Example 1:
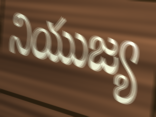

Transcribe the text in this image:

నియుజ్య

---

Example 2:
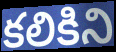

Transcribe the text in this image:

కలికిని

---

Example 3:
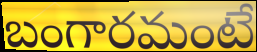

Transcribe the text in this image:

బంగారమంటే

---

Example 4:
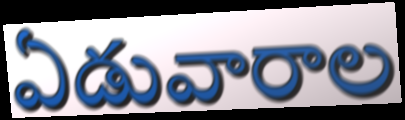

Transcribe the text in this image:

ఏడువారాల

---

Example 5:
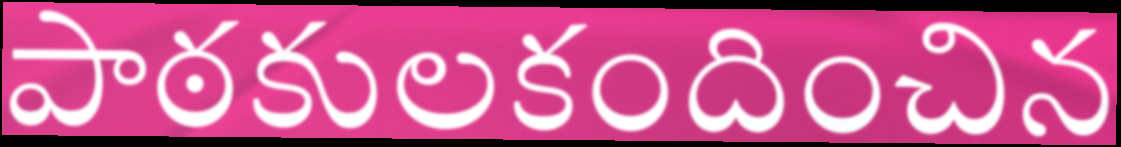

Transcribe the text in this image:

పాఠకులకందించిన